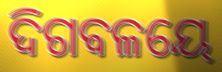
ଦିଗବଳୟେ